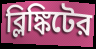
ব্লিঙ্কিটের